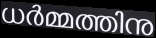
ധർമ്മത്തിനു